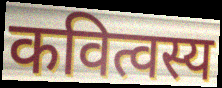
कवित्वस्य